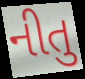
નીતુ